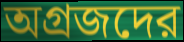
অগ্রজদের